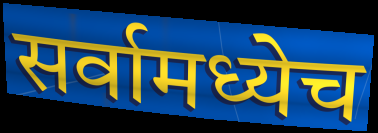
सर्वामध्येच